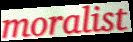
moralist